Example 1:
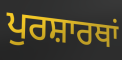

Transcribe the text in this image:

ਪੁਰਸ਼ਾਰਥਾਂ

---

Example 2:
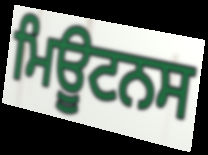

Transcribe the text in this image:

ਮਿਊਟਨਸ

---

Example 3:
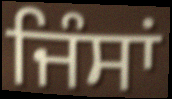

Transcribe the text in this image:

ਜਿੰਸਾਂ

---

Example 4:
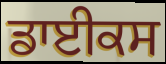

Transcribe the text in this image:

ਡਾਈਕਸ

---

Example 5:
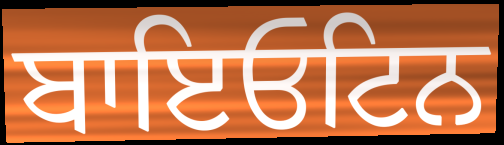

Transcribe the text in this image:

ਬਾਇਓਟਿਨ